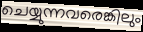
ചെയ്യുന്നവരെങ്കിലും